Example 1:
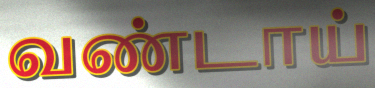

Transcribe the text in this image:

வண்டாய்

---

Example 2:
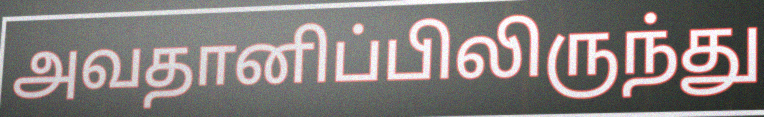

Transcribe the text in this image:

அவதானிப்பிலிருந்து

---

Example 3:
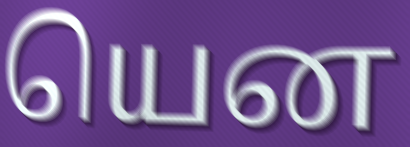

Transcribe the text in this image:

யென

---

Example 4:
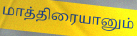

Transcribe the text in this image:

மாத்திரையானும்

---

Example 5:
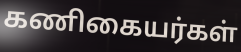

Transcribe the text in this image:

கணிகையர்கள்